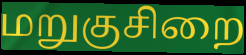
மறுகுசிறை